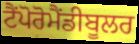
ਟੈਂਪੋਰੋਮੈਂਡੀਬੂਲਰ